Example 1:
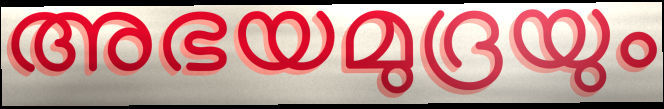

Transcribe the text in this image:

അഭയമുദ്രയും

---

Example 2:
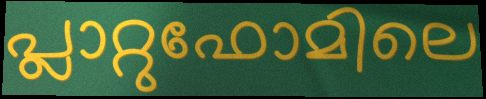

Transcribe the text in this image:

പ്ലാറ്റുഫോമിലെ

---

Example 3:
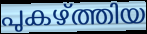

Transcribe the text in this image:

പുകഴ്ത്തിയ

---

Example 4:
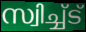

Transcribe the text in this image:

സ്വിച്ച്ട്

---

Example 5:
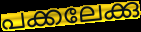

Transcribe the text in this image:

പക്കലേക്കു